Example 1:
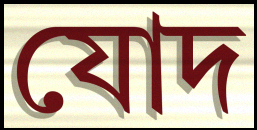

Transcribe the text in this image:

যোদ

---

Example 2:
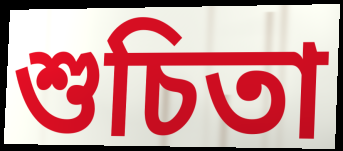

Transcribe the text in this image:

শুচিতা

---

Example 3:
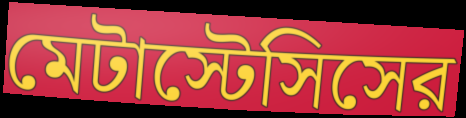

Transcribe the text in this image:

মেটাস্টেসিসের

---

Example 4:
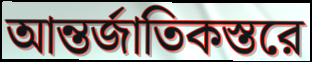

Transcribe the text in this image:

আন্তর্জাতিকস্তরে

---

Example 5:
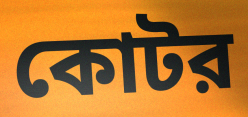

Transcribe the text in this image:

কোটর